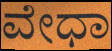
ವೇಧಾ